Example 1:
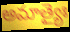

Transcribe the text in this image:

అమాత్యైః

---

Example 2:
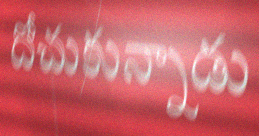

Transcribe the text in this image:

దోచుకున్నాడు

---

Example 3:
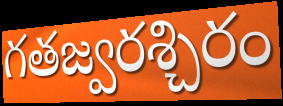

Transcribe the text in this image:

గతజ్వరశ్చిరం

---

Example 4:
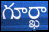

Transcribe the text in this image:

గూర్ఖా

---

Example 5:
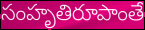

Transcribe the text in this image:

సంహృతిరూపాంతే